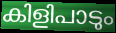
കിളിപാടും